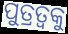
ପୁତ୍ରତ୍ଵକୁ